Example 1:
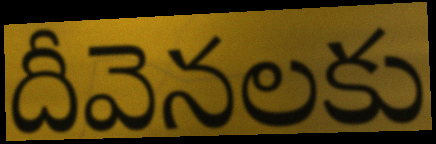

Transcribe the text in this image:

దీవెనలకు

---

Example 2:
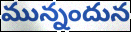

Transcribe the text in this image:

మున్నందున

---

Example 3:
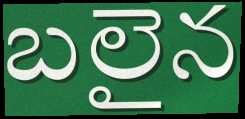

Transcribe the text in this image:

బలైన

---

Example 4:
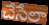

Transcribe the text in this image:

చేసేలా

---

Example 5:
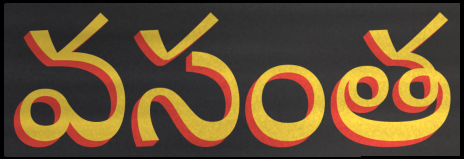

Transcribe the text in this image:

వసంత